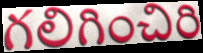
గలిగించిరి